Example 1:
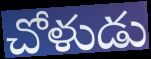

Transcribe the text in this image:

చోళుడు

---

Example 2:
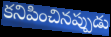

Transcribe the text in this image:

కనిపించినప్పుడు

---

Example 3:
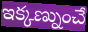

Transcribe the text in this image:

ఇక్కణ్నుంచే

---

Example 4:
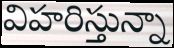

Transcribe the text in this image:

విహరిస్తున్నా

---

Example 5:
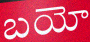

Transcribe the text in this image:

బయో